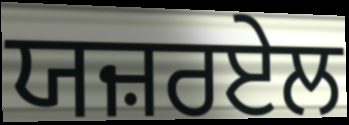
ਯਜ਼ਰਏਲ